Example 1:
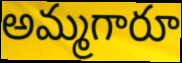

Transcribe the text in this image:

అమ్మగారూ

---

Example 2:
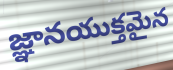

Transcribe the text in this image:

జ్ఞానయుక్తమైన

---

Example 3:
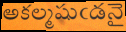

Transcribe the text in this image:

అకల్మషుఁడనై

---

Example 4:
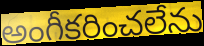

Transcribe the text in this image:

అంగీకరించలేను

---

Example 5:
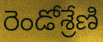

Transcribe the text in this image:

రెండోశ్రేణి